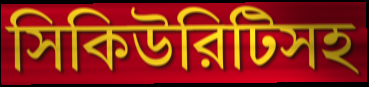
সিকিউরিটিসহ